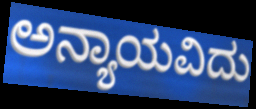
ಅನ್ಯಾಯವಿದು